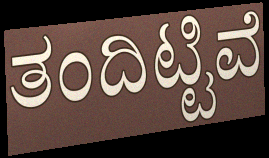
ತಂದಿಟ್ಟಿವೆ